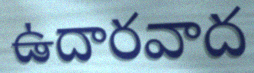
ఉదారవాద